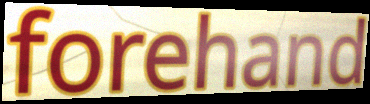
forehand